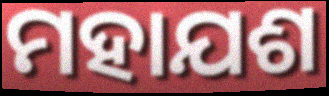
ମହାଯଶ